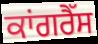
ਕਾਂਗਰੈੱਸ